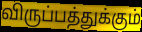
விருப்பத்துக்கும்